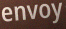
envoy